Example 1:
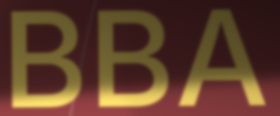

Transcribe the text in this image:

BBA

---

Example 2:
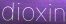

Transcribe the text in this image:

dioxin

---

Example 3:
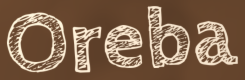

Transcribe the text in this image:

Oreba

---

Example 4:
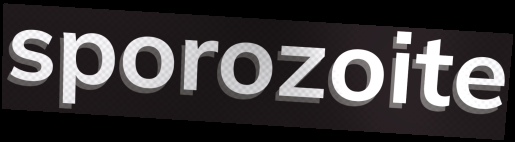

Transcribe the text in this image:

sporozoite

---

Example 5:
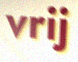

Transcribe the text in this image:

vrij